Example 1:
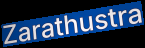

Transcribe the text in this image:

Zarathustra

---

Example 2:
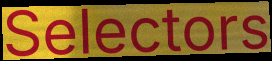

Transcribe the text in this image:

Selectors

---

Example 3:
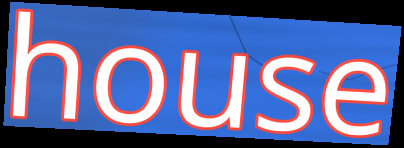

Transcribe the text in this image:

house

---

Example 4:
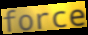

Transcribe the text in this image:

force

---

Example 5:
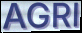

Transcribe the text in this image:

AGRI